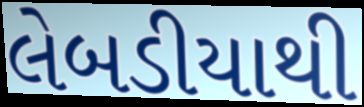
લેબડીયાથી